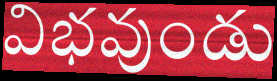
విభవుండు